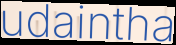
udaintha